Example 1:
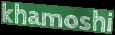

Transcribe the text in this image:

khamoshi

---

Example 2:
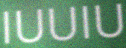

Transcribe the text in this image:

IUUIU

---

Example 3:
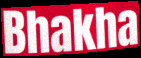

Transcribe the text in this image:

Bhakha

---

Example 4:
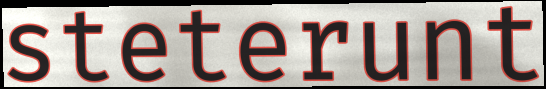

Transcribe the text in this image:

steterunt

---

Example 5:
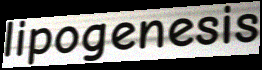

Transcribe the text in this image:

lipogenesis